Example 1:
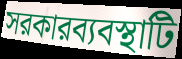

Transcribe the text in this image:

সরকারব্যবস্থাটি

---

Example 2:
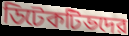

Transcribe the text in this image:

ডিটেকটিভদের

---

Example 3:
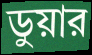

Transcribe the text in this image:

ডুয়ার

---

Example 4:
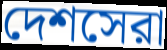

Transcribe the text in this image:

দেশসেরা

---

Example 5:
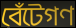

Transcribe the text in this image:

বেঁটেগণ